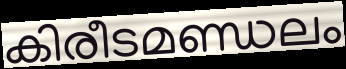
കിരീടമണ്ഡലം